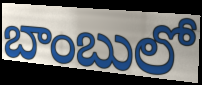
బాంబులో